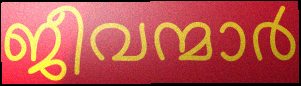
ജീവന്മാർ